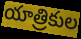
యాత్రికుల